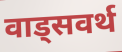
वाड्सवर्थ